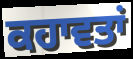
ਕਹਾਵਤਾਂ